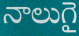
నాలుగై